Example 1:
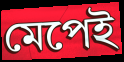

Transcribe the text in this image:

মেপেই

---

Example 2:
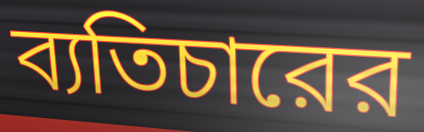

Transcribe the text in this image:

ব্যতিচারের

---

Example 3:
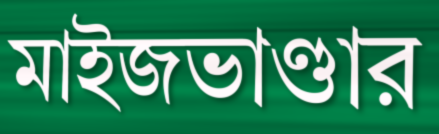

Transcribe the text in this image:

মাইজভাণ্ডার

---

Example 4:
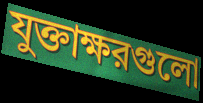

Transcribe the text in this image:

যুক্তাক্ষরগুলো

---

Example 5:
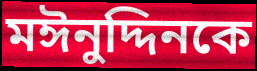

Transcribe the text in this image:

মঈনুদ্দিনকে